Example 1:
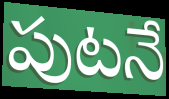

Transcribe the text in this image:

పుటనే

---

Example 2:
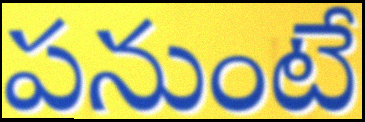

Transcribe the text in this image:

పనుంటే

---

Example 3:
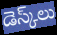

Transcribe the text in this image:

డెస్క్‌లు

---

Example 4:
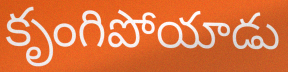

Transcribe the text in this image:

కృంగిపోయాడు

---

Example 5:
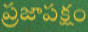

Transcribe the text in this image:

ప్రజాపక్షం